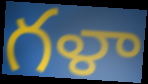
గళా